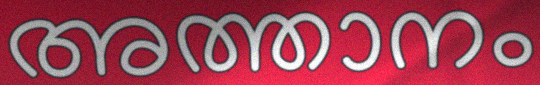
അത്താനം